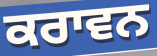
ਕਰਾਵਨ